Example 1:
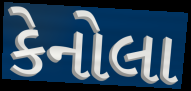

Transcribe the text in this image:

કેનોલા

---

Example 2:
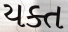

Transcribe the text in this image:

યક્ત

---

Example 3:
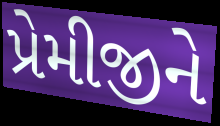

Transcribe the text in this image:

પ્રેમીજીને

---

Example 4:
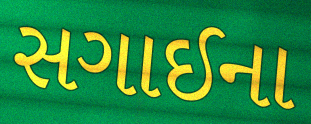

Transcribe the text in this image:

સગાઈના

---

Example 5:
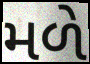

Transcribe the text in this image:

મળે